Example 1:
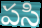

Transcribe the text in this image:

పసి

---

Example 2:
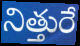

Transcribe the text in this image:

నిత్తురే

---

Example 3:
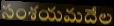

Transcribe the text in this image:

సంశయమదేల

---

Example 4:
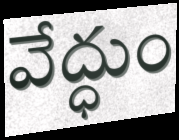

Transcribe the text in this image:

వేద్ధుం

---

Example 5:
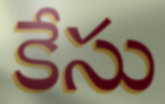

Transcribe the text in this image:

కేసు